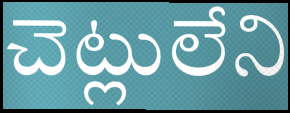
చెట్లులేని